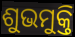
ଶୁଭମୁକ୍ତି